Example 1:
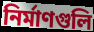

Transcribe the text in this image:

নির্মাণগুলি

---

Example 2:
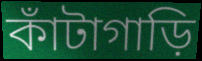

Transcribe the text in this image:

কাঁটাগাড়ি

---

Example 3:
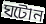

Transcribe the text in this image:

ঘটোন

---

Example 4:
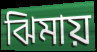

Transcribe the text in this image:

ঝিমায়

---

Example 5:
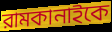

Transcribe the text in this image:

রামকানাইকে